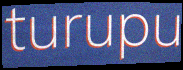
turupu